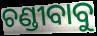
ଚଣ୍ଡୀବାବୁ